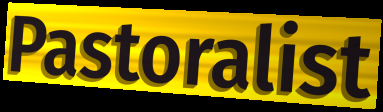
Pastoralist